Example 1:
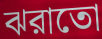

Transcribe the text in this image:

ঝরাতো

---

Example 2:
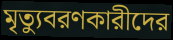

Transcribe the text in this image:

মৃত্যুবরণকারীদের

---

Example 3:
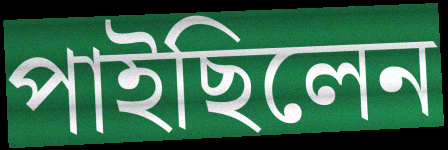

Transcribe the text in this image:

পাইছিলেন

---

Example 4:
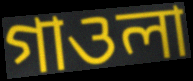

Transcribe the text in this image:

গাওলা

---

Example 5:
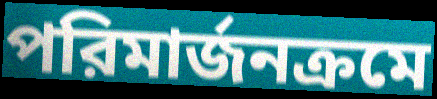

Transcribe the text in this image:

পরিমার্জনক্রমে